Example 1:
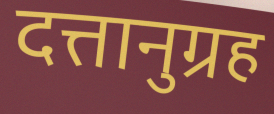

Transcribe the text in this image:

दत्तानुग्रह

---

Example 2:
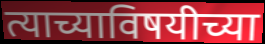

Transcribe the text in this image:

त्याच्याविषयीच्या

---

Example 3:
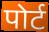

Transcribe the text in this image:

पोर्ट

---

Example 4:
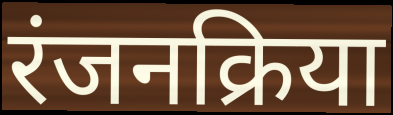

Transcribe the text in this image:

रंजनक्रिया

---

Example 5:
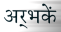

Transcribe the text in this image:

अर्भकें